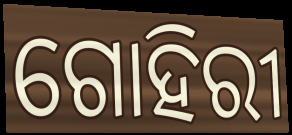
ଗୋହିରୀ